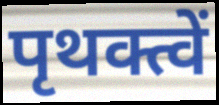
पृथक्त्वें